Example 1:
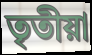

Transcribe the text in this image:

তৃতীয়া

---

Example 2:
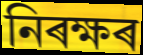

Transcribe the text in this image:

নিৰক্ষৰ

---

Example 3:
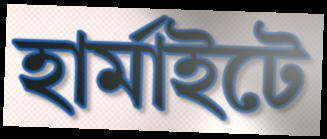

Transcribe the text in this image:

হাৰ্মাইটে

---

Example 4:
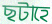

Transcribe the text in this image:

ছটাহে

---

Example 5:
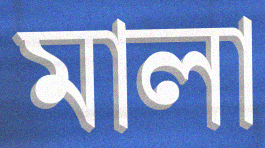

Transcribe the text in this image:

মালা